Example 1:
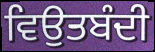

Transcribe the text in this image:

ਵਿਉਤਬੰਦੀ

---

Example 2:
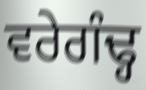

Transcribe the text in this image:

ਵਰੇਗੰਢ੍ਹ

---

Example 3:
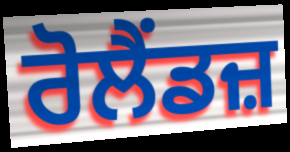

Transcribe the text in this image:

ਰੋਲੈਂਡਜ਼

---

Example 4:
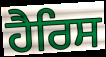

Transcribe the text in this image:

ਹੈਰਿਸ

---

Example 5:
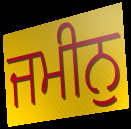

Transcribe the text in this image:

ਜਮੀਨੁ